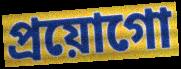
প্ৰয়োগো